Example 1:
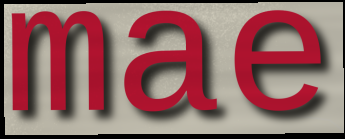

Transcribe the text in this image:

mae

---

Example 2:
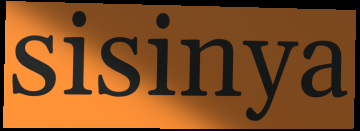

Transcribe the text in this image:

sisinya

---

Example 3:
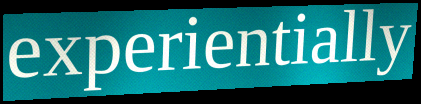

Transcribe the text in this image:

experientially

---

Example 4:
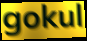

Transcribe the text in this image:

gokul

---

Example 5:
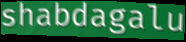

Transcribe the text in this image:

shabdagalu